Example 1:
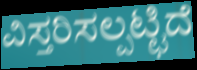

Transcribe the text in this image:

ವಿಸ್ತರಿಸಲ್ಪಟ್ಟಿದೆ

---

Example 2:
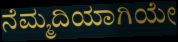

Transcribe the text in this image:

ನೆಮ್ಮದಿಯಾಗಿಯೇ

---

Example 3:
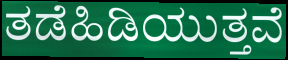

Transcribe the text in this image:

ತಡೆಹಿಡಿಯುತ್ತವೆ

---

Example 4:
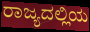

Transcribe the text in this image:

ರಾಜ್ಯದಲ್ಲಿಯ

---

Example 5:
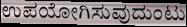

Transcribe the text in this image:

ಉಪಯೋಗಿಸುವುದುಂಟು